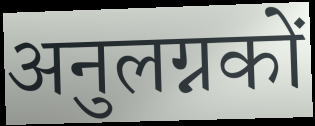
अनुलग्नकों